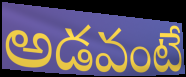
అడవంటే